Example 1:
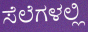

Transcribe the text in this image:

ಸೆಲೆಗಳಲ್ಲಿ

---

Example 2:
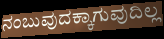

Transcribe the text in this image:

ನಂಬುವುದಕ್ಕಾಗುವುದಿಲ್ಲ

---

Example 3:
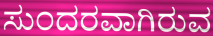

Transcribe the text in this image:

ಸುಂದರವಾಗಿರುವ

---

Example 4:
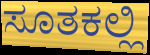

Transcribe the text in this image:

ಸೂತಕಲ್ಲಿ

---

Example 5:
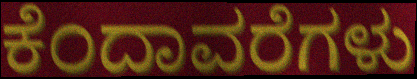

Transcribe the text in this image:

ಕೆಂದಾವರೆಗಳು